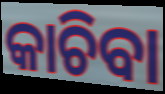
କାଚିବା